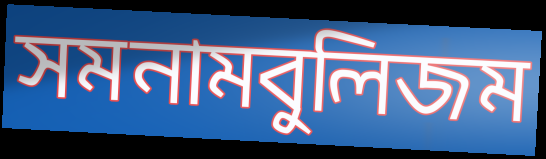
সমনামবুলিজম